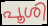
പൂശി